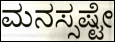
ಮನಸ್ಸಷ್ಟೇ